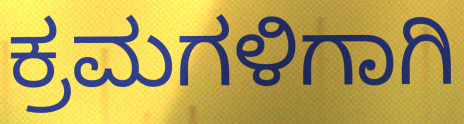
ಕ್ರಮಗಳಿಗಾಗಿ